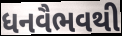
ધનવૈભવથી